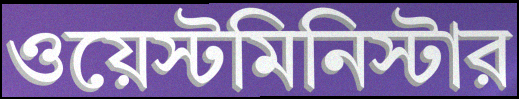
ওয়েস্টমিনিস্টার